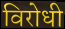
विरोधी